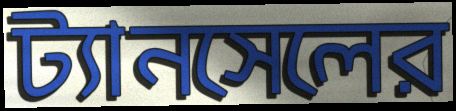
ট্যানসেলের